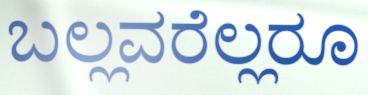
ಬಲ್ಲವರೆಲ್ಲರೂ